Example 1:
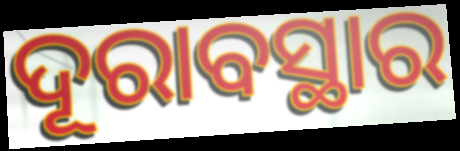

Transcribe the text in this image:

ଦୂରାବସ୍ଥାର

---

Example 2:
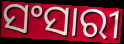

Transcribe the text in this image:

ସଂସାରୀ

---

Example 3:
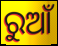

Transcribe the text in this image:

ରୁଆଁ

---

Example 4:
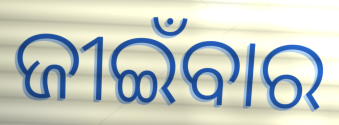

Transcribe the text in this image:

ଜୀଇଁବାର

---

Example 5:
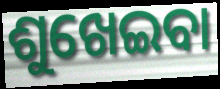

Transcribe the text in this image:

ଶୁଖେଇବା